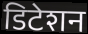
डिटेशन